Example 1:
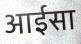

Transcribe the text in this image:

आईसा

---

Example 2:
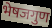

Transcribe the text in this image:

भेषजगुण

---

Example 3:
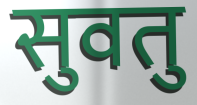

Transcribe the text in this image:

सुवतु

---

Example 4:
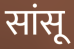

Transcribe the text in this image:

सांसू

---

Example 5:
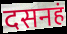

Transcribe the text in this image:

दसनहं